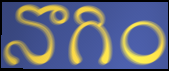
నొగిం